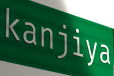
kanjiya